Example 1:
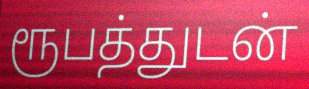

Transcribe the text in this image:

ரூபத்துடன்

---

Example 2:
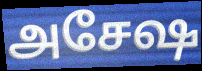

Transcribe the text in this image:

அசேஷ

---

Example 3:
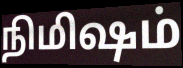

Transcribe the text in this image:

நிமிஷம்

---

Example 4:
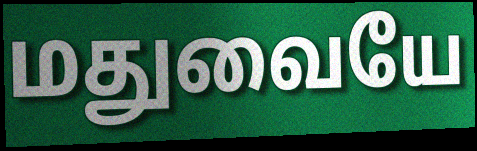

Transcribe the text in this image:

மதுவையே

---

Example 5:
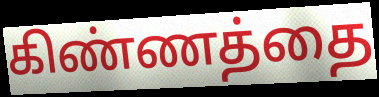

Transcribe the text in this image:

கிண்ணத்தை